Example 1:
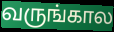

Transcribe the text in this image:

வருங்கால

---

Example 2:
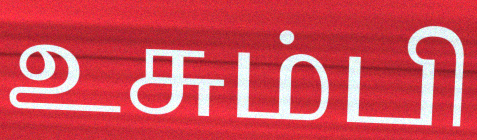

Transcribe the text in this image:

உசும்பி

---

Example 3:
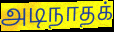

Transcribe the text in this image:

அடிநாதக்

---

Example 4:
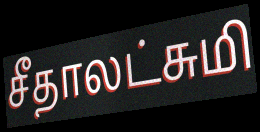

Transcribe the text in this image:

சீதாலட்சுமி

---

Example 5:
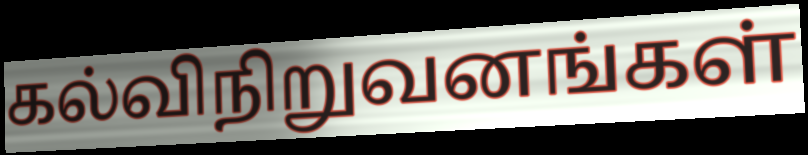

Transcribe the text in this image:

கல்விநிறுவனங்கள்